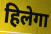
हिलेगा